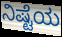
ನಿಷ್ಟೆಯ